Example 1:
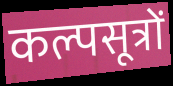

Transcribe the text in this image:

कल्पसूत्रों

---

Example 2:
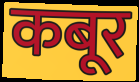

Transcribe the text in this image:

कबूर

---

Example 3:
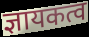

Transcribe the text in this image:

ज्ञायकत्व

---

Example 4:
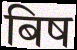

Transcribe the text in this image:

बिष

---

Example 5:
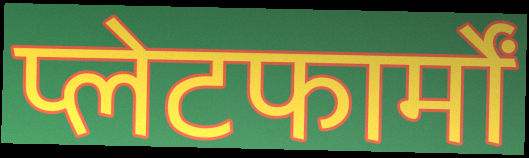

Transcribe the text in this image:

प्लेटफार्मों